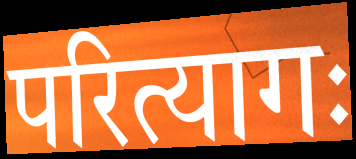
परित्यागः